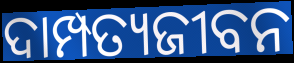
ଦାମ୍ପତ୍ୟଜୀବନ